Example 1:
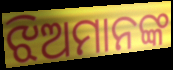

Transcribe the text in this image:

ଝିଅମାନଙ୍କ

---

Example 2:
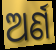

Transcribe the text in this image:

ଅର୍ଣ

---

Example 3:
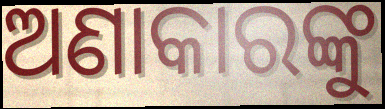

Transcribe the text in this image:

ଅଣାକାରଙ୍କୁ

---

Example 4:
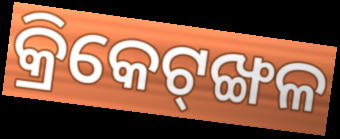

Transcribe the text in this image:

କ୍ରିକେଟ୍‌ଙ୍ଖଳ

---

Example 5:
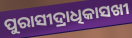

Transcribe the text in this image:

ପୁରାସୀଦ୍ରାଧିକାସଖୀ